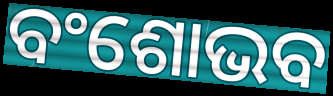
ବଂଶୋଭବ